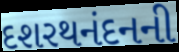
દશરથનંદનની